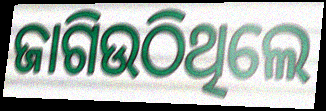
ଜାଗିଉଠିଥିଲେ